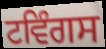
ਟਵਿੰਗਸ